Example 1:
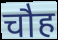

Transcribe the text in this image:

चौह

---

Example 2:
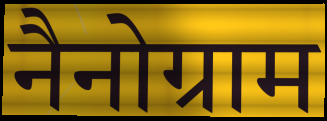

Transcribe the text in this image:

नैनोग्राम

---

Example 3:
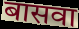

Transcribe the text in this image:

बासवा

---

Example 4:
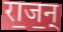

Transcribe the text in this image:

रा॒ज॒न्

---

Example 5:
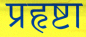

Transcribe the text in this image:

प्रहृष्टा